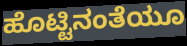
ಹೊಟ್ಟಿನಂತೆಯೂ